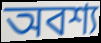
অবশ্য